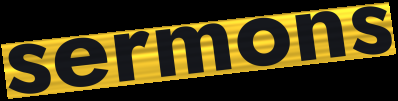
sermons